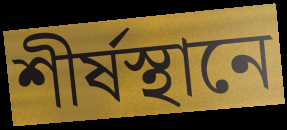
শীর্ষস্থানে